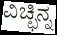
ವಿಚ್ಛಿನ್ನ